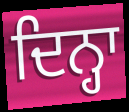
ਦਿਨ੍ਹਾ